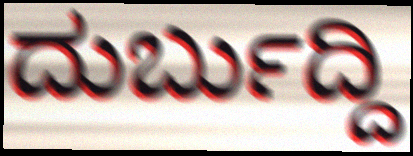
ದುರ್ಬುದ್ದಿ